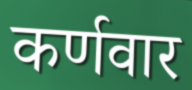
कर्णवार